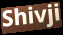
Shivji